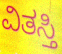
ವಿತಸ್ತಿ